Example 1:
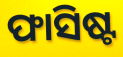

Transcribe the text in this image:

ଫାସିଷ୍ଟ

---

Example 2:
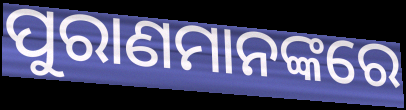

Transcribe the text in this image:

ପୁରାଣମାନଙ୍କରେ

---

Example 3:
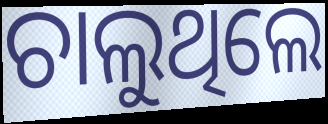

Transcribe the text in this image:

ଚାଲୁଥିଲେ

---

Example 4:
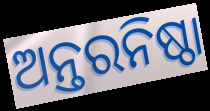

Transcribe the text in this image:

ଅନ୍ତରନିଷ୍ଠା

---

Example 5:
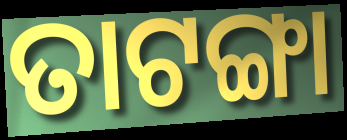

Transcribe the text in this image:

ତାଟଙ୍ଗା